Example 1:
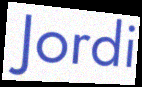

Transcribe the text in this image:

Jordi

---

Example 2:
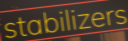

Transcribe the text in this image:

stabilizers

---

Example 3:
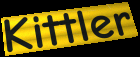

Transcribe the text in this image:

Kittler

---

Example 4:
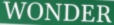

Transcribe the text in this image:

WONDER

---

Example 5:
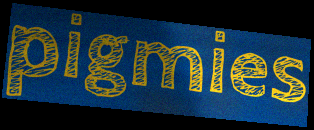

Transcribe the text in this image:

pigmies